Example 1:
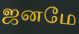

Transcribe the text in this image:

ஜனமே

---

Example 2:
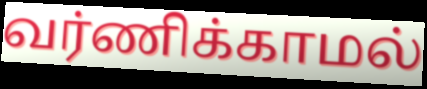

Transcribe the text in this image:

வர்ணிக்காமல்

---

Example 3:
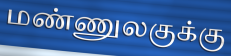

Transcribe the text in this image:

மண்ணுலகுக்கு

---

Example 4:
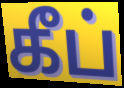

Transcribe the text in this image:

கீப்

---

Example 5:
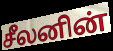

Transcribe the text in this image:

சீலனின்